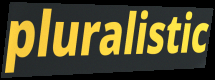
pluralistic